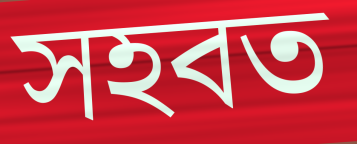
সহবত